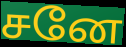
சனே